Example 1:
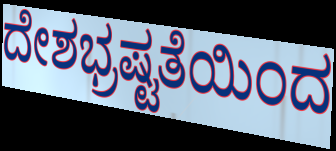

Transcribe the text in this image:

ದೇಶಭ್ರಷ್ಟತೆಯಿಂದ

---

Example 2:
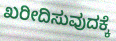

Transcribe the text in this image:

ಖರೀದಿಸುವುದಕ್ಕೆ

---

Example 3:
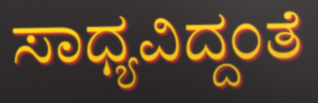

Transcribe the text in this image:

ಸಾಧ್ಯವಿದ್ದಂತೆ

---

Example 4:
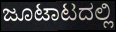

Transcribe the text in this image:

ಜೂಟಾಟದಲ್ಲಿ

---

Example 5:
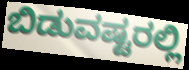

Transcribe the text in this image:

ಬಿಡುವಷ್ಟರಲ್ಲಿ